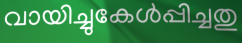
വായിച്ചുകേൾപ്പിച്ചതു